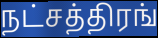
நட்சத்திரங்